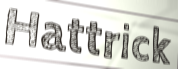
Hattrick